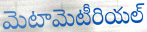
మెటామెటీరియల్